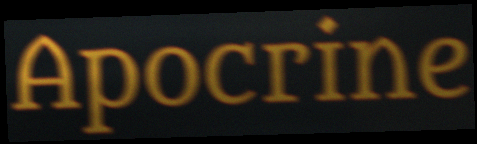
Apocrine